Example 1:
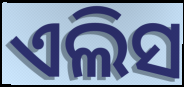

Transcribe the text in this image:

ଏଲିସ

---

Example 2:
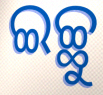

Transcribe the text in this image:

ଇଚ୍ଛୁ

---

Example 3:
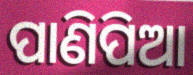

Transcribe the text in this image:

ପାଣିପିଆ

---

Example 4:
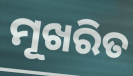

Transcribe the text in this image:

ମୂଖରିତ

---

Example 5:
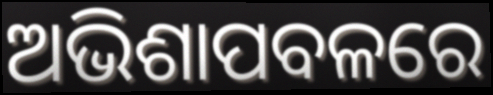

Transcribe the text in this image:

ଅଭିଶାପବଳରେ